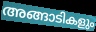
അങ്ങാടികളും